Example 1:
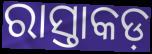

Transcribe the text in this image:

ରାସ୍ତାକଡ଼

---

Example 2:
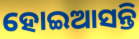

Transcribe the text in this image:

ହୋଇଆସନ୍ତି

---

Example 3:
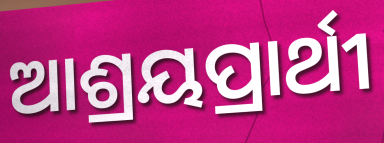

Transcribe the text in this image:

ଆଶ୍ରୟପ୍ରାର୍ଥୀ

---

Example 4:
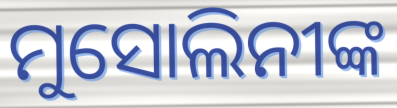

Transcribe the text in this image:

ମୁସୋଲିନୀଙ୍କ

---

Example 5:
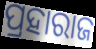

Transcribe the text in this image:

ପ୍ରହାରାଜ